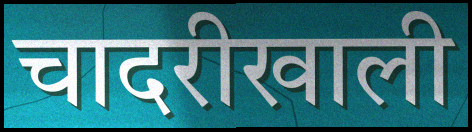
चादरीखाली